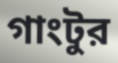
গাংটুর